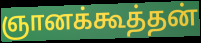
ஞானக்கூத்தன்